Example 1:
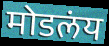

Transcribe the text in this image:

मोडलंय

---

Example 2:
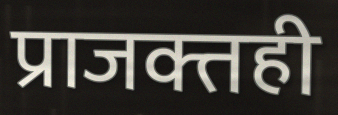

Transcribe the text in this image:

प्राजक्तही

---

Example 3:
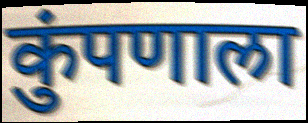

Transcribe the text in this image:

कुंपणाला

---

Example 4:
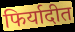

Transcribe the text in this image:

फिर्यादीत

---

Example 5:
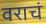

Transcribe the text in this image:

वराचं